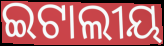
ଇଟାଲୀୟ